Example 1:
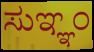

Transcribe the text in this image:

ಸುಞ್ಞಂ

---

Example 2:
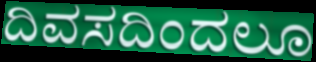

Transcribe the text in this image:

ದಿವಸದಿಂದಲೂ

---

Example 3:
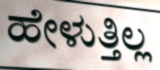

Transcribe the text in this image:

ಹೇಳುತ್ತಿಲ್ಲ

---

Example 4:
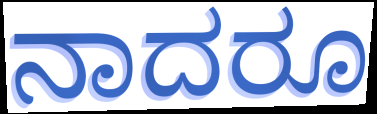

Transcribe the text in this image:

ನಾದರೂ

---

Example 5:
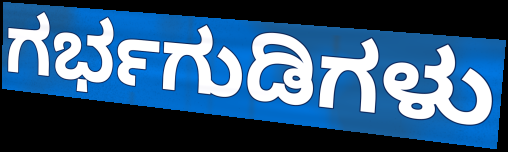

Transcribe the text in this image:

ಗರ್ಭಗುಡಿಗಳು